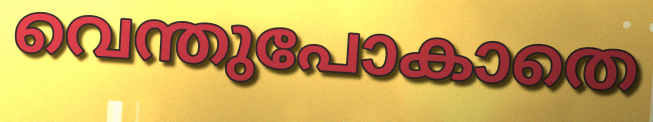
വെന്തുപോകാതെ